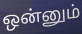
ஒன்னும்